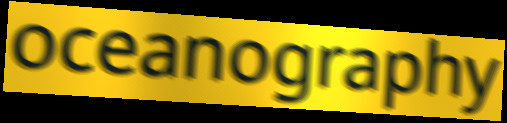
oceanography